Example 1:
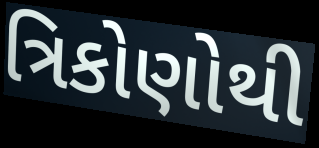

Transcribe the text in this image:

ત્રિકોણોથી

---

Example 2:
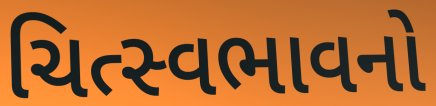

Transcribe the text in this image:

ચિત્સ્વભાવનો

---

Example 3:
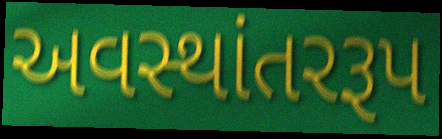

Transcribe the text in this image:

અવસ્થાંતરરૂપ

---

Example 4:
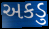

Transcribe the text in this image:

અકડુ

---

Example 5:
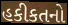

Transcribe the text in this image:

હકીકતનો